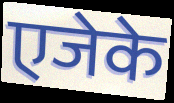
एजेके